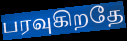
பரவுகிறதே